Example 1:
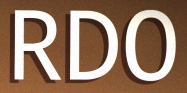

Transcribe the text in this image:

RDO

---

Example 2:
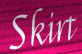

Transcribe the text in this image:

Skirt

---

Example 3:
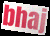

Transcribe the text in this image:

bhaj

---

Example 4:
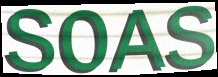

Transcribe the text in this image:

SOAS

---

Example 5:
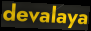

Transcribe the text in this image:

devalaya